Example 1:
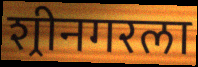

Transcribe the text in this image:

श्रीनगरला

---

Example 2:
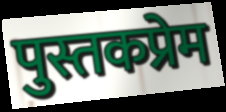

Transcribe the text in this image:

पुस्तकप्रेम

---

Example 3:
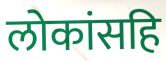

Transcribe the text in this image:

लोकांसहि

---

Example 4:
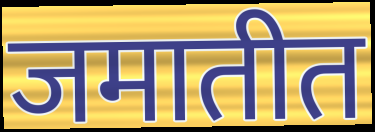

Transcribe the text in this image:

जमातीत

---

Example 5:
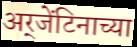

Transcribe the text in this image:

अर्जेंटिनाच्या